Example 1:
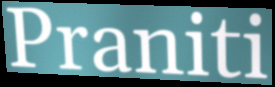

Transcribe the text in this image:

Praniti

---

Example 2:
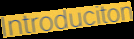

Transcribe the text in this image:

Introduciton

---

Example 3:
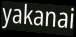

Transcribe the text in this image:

yakanai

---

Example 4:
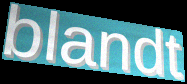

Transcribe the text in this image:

blandt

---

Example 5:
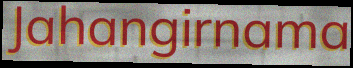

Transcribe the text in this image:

Jahangirnama